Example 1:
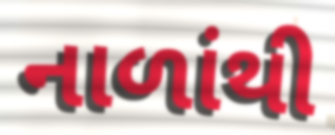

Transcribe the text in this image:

નાળાંથી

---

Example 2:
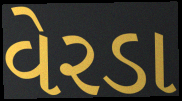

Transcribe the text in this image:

વેરડા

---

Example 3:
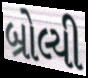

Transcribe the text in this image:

બ્રોલ્યી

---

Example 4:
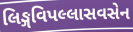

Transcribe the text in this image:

લિઙ્ગવિપલ્લાસવસેન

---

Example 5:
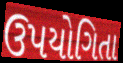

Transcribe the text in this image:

ઉપયોગિતા